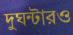
দুঘন্টারও